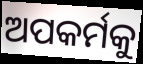
ଅପକର୍ମକୁ